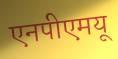
एनपीएमयू